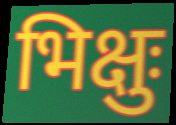
भिक्षुः